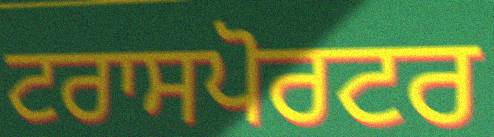
ਟਰਾਸਪੋਰਟਰ